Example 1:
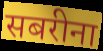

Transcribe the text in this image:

सबरीना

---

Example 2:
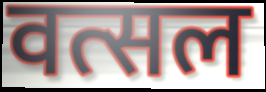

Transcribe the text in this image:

वत्सल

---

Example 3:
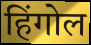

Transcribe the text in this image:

हिंगोल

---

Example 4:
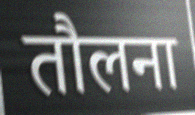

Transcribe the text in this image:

तौलना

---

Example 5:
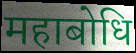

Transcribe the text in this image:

महाबोधि